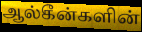
ஆல்கீன்களின்